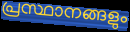
പ്രസ്ഥാനങ്ങളും